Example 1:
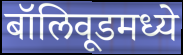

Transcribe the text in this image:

बॉलिवूडमध्ये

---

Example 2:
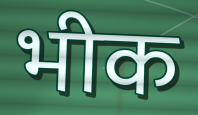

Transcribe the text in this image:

भीक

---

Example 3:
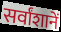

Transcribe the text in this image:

सर्वांशानें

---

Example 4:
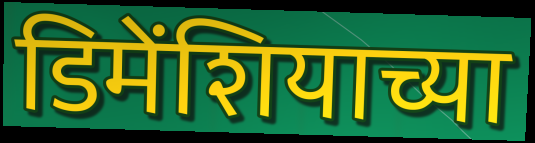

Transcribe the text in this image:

डिमेंशियाच्या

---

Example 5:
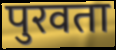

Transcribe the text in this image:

पुरवता